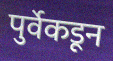
पुर्वेकडून